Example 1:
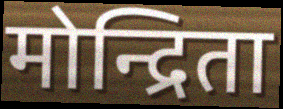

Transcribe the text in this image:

मोन्द्रिता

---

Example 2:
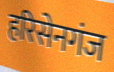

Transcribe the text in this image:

हरिसेनगंज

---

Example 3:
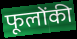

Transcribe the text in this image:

फूलोंकी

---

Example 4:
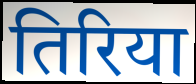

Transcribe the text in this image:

तिरिया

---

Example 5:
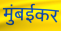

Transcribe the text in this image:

मुंबईकर